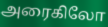
அரைகிலோ